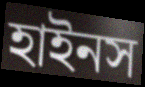
হাইনস